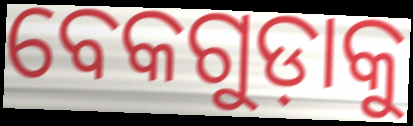
ବେକଗୁଡ଼ାକୁ